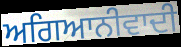
ਅਗਿਆਨੀਵਾਦੀ